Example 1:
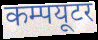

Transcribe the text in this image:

कम्पयूटर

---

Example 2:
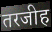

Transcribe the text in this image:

तरजीह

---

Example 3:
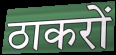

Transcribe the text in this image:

ठाकरों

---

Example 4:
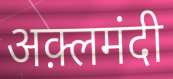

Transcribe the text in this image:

अक़्लमंदी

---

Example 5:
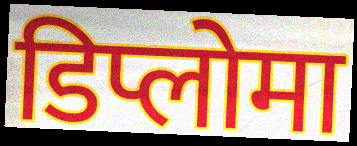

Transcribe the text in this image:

डिप्लोमा